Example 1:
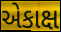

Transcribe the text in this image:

એકાક્ષ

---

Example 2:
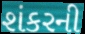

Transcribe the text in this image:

શંકરની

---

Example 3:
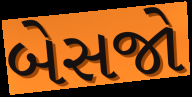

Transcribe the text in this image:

બેસજો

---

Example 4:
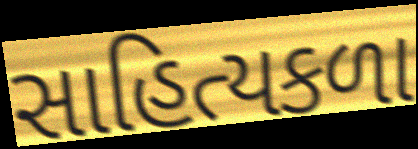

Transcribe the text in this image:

સાહિત્યકળા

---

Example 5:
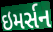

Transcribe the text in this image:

ઇમર્સન